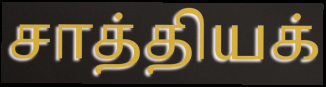
சாத்தியக்